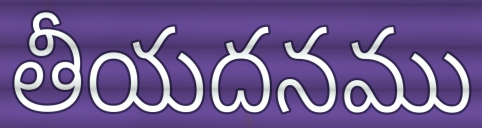
తీయదనము